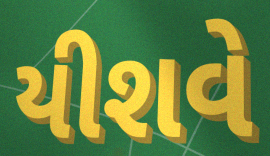
યીશવે